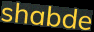
shabde